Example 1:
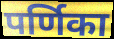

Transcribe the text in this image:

पर्णिका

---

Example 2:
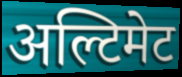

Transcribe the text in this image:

अल्टिमेट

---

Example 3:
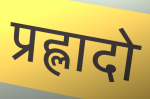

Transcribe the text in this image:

प्रह्लादो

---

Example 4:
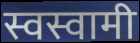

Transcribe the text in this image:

स्वस्वामी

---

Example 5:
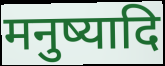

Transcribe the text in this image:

मनुष्यादि